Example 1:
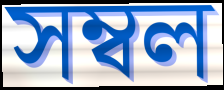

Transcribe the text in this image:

সম্বল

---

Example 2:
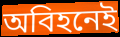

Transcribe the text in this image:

অবিহনেই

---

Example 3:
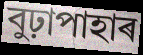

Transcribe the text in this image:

বুঢ়াপাহাৰ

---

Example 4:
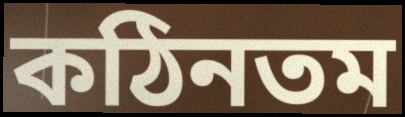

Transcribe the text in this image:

কঠিনতম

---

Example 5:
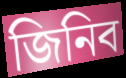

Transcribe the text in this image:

জিনিব